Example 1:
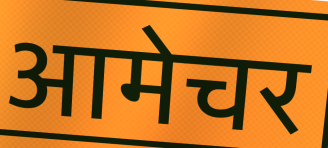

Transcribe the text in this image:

आमेचर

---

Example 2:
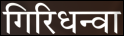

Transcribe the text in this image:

गिरिधन्वा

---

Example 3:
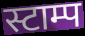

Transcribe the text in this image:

स्टाम्प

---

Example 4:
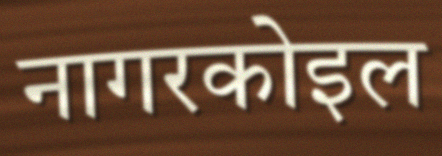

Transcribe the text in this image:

नागरकोइल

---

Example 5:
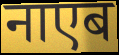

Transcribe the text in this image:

नाएब